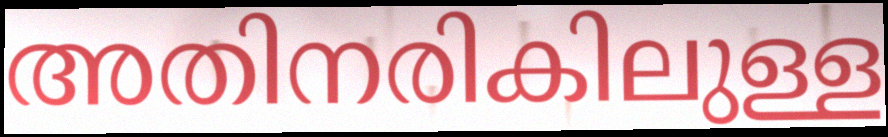
അതിനരികിലുള്ള